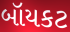
બૉયકટ